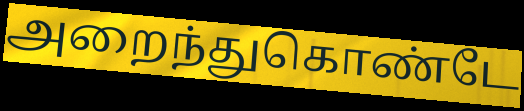
அறைந்துகொண்டே